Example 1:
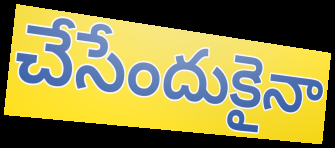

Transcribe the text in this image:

చేసేందుకైనా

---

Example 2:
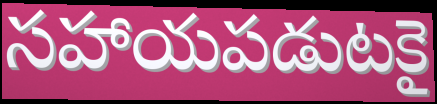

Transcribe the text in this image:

సహాయపడుటకై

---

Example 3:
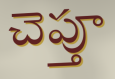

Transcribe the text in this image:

చెప్తూ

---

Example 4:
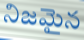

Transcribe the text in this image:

నిజమైన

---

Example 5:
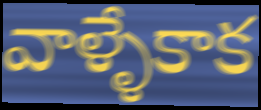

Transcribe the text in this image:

వాళ్ళేకాక